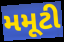
મમૂટી